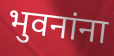
भुवनांना